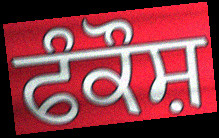
ਫੰਕੌਸ਼